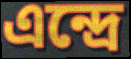
এন্দ্ৰে